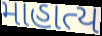
માહાત્ય